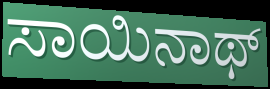
ಸಾಯಿನಾಥ್